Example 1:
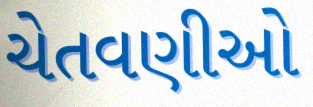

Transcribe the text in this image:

ચેતવણીઓ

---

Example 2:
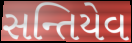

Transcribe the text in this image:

સન્તિયેવ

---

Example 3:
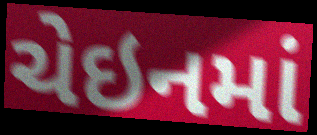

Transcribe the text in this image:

ચેઇનમાં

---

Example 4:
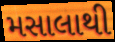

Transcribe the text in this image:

મસાલાથી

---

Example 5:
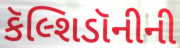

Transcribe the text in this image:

કૅલ્શિડૉનીની